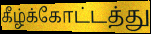
கீழ்க்கோட்டத்து